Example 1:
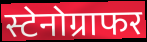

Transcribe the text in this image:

स्टेनोग्राफर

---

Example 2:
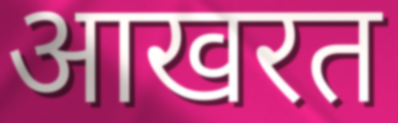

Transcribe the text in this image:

आखरत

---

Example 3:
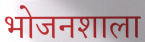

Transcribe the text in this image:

भोजनशाला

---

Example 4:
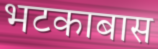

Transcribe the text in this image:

भटकाबास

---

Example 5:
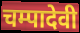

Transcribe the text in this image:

चम्पादेवी